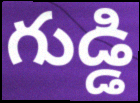
గుడ్డి